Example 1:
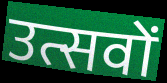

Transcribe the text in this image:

उत्सवों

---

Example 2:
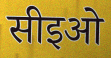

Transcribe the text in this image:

सीइओ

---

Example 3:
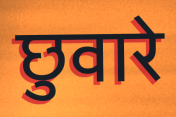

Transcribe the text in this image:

छुवारे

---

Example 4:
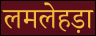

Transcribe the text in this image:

लमलेहड़ा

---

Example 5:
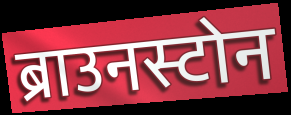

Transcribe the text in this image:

ब्राउनस्टोन